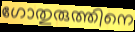
ഗോതുരുത്തിനെ